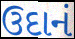
ઉદાનં